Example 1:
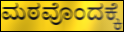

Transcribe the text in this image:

ಮಠವೊಂದಕ್ಕೆ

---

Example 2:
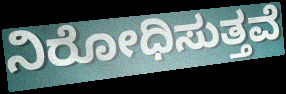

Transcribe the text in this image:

ನಿರೋಧಿಸುತ್ತವೆ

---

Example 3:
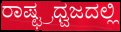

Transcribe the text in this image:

ರಾಷ್ಟ್ರಧ್ವಜದಲ್ಲಿ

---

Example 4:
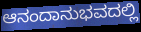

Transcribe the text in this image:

ಆನಂದಾನುಭವದಲ್ಲಿ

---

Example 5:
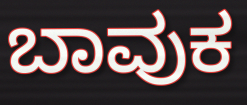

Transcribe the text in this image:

ಬಾವುಕ